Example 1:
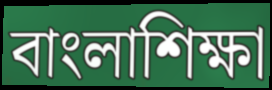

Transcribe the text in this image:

বাংলাশিক্ষা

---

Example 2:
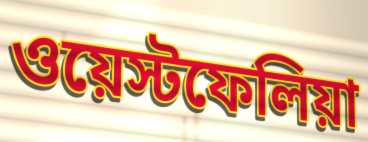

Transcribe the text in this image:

ওয়েস্টফেলিয়া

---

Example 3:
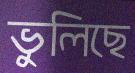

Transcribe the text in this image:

ভুলিছে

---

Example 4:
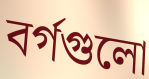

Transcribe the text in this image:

বর্গগুলো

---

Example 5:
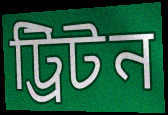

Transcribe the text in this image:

ট্রিটন